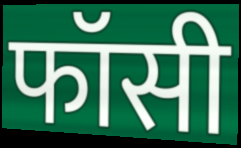
फॉसी